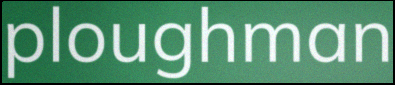
ploughman